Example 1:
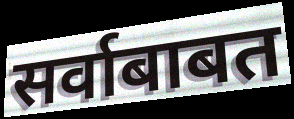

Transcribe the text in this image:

सर्वाबाबत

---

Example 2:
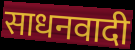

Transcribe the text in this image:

साधनवादी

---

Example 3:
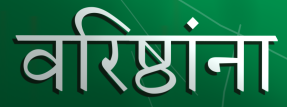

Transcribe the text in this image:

वरिष्ठांना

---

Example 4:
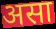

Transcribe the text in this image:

असा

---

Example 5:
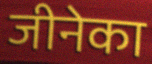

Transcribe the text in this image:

जीनेका